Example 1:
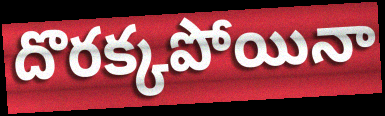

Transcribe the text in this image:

దొరక్కపోయినా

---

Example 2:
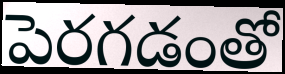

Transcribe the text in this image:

పెరగడంతో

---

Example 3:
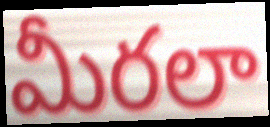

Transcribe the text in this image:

మీరలా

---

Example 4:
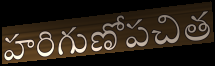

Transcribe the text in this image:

హరిగుణోపచిత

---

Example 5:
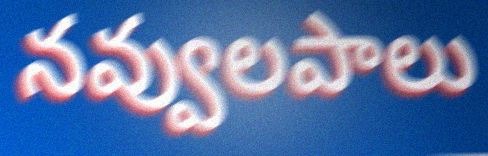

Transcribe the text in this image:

నవ్వులపాలు